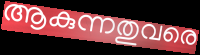
ആകുന്നതുവരെ